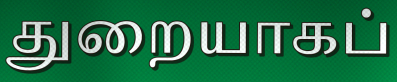
துறையாகப்